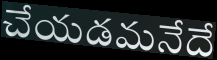
చేయడమనేదే